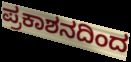
ಪ್ರಕಾಶನದಿಂದ